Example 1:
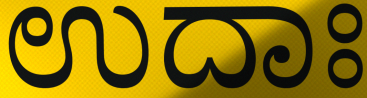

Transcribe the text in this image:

ಉದಾಃ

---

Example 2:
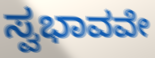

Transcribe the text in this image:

ಸ್ವಭಾವವೇ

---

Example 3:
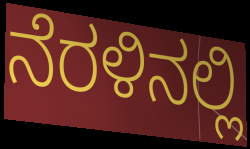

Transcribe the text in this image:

ನೆರಳಿನಲ್ಲಿ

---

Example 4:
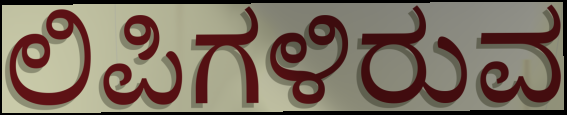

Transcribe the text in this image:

ಲಿಪಿಗಳಿರುವ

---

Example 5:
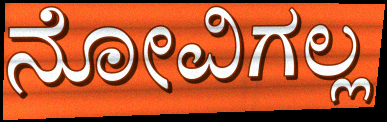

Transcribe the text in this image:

ನೋವಿಗಲ್ಲ